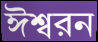
ঈশ্বরন